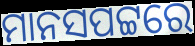
ମାନସପଟ୍ଟରେ